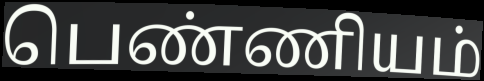
பெண்ணியம்